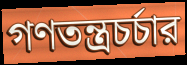
গণতন্ত্রচর্চার